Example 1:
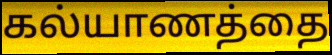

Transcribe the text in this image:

கல்யாணத்தை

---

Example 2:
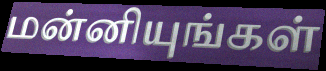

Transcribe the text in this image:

மன்னியுங்கள்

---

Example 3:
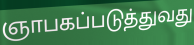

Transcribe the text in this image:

ஞாபகப்படுத்துவது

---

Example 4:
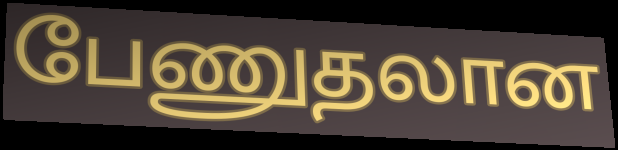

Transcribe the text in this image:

பேணுதலான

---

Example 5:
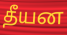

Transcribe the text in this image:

தீயன